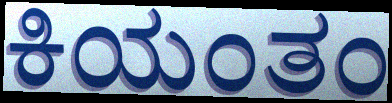
ಕಿಯಂತಂ